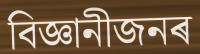
বিজ্ঞানীজনৰ